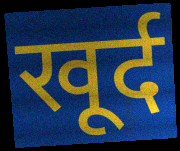
खूर्द